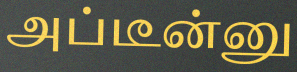
அப்டீன்னு